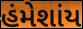
હંમેશાંય